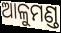
ଆଳୁମଣ୍ଡ